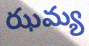
ఝమ్య